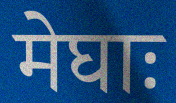
मेघाः